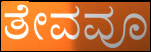
ತೇವವೂ